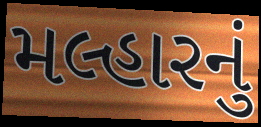
મલ્હારનું